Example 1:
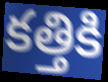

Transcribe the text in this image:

కత్తికి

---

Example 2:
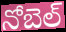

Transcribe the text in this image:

నోబెల్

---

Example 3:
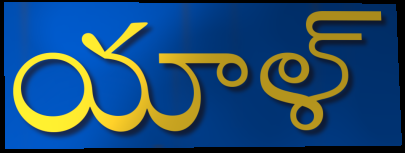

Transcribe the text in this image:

యాళ్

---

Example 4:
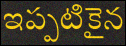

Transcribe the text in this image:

ఇప్పటికైన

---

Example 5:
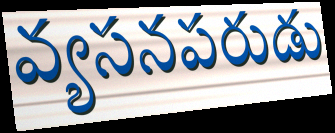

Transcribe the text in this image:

వ్యసనపరుడు